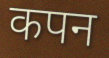
कपन